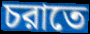
চরাতে